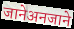
जानेअनजाने